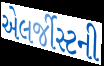
એલર્જીસ્ટની